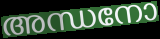
അന്ധനോ